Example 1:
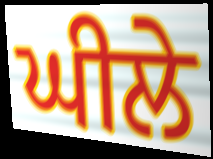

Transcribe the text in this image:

ਘੀਲੇ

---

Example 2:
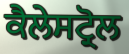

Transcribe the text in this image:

ਕੈਲੇਸਟ੍ਰੋਲ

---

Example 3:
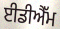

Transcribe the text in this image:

ਈਡੀਐੱਮ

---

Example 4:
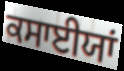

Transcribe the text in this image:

ਕਸਾਈਯਾਂ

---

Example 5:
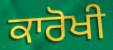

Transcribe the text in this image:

ਕਾਰੋਖੀ